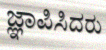
ಜ್ಞಾಪಿಸಿದರು